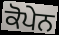
ਕੋਪੇਨ